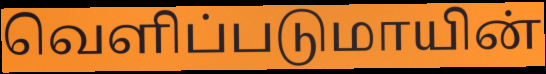
வெளிப்படுமாயின்